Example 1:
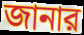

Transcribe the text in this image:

জানার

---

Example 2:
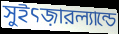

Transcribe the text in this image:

সুইৎজ়ারল্যান্ডে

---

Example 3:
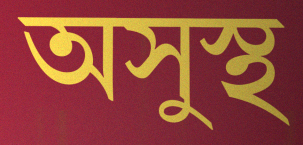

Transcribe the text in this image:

অসুস্থ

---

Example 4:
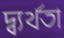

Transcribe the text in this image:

দ্ব্যর্থতা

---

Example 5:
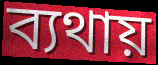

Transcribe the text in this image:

ব্যথায়